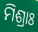
ମିଶ୍ରାଃ